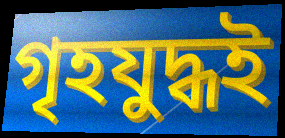
গৃহযুদ্ধই